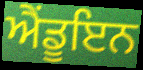
ਐਂਡੂਇਨ